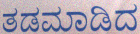
ತಡಮಾಡಿದ